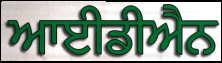
ਆਈਡੀਐਨ